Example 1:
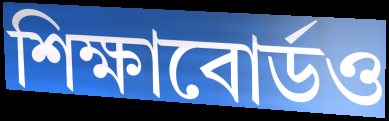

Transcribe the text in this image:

শিক্ষাবোর্ডও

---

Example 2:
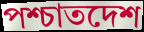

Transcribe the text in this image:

পশ্চাতদেশ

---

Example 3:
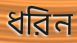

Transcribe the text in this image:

ধরিন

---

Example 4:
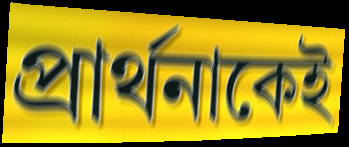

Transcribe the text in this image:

প্রার্থনাকেই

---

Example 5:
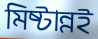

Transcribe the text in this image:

মিষ্টান্নই